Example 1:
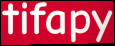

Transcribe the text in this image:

tifapy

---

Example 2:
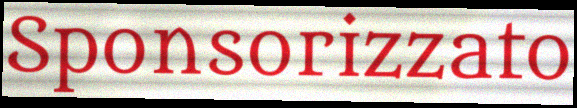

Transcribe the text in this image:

Sponsorizzato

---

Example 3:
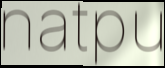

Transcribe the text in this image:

natpu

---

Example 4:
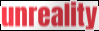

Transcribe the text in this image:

unreality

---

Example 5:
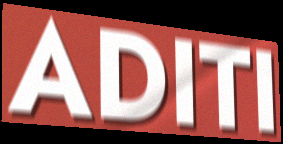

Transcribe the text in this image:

ADITI